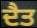
ਦੈਤ